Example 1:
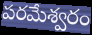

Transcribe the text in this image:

పరమేశ్వరం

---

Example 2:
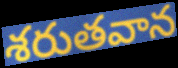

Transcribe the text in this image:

శరుతవాన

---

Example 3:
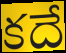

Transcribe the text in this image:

కదే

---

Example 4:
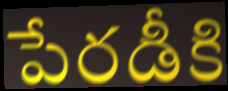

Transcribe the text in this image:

పేరడీకి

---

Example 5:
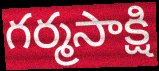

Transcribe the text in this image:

గర్మసాక్షి